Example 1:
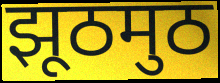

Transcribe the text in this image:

झूठमुठ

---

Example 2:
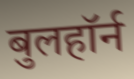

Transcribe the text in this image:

बुलहॉर्न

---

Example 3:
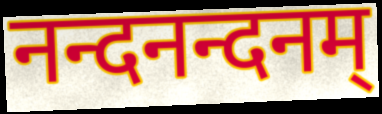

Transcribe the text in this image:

नन्दनन्दनम्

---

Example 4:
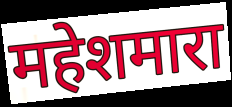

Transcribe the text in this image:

महेशमारा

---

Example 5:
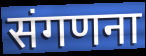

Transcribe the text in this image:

संगणना